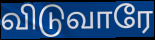
விடுவாரே